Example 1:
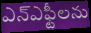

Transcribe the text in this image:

ఎన్ఎఫ్టీలను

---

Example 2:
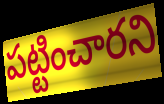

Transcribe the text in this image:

పట్టించారని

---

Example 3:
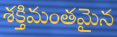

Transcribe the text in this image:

శక్తిమంతమైన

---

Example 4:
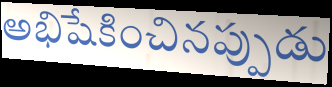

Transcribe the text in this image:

అభిషేకించినప్పుడు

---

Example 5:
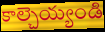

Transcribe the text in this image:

కాల్చెయ్యండి